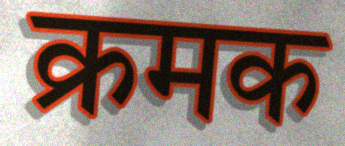
क्रमक